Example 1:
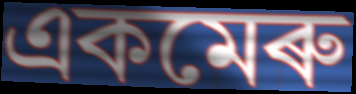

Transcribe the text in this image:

একমেৰু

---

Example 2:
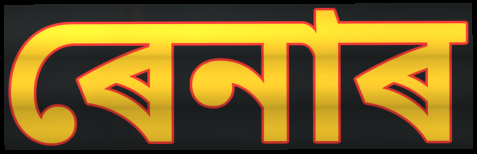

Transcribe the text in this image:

ৰেনাৰ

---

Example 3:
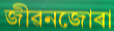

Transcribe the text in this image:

জীৱনজোৰা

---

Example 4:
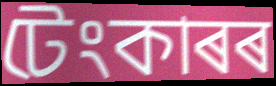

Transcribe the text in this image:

টেংকাৰৰ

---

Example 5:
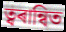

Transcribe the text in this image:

ত্বৰান্বিত